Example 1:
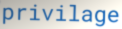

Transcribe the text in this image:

privilage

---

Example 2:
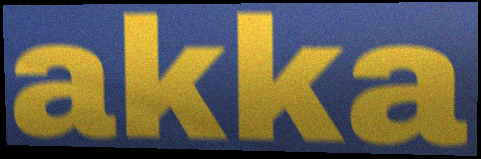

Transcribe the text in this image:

akka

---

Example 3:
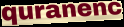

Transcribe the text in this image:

quranenc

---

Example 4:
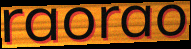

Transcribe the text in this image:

raorao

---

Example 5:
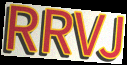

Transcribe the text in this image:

RRVJ